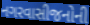
નગરવાસીજનોની